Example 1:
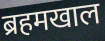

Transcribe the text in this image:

ब्रहमखाल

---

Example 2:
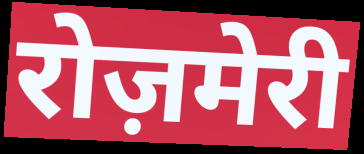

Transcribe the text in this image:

रोज़मेरी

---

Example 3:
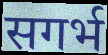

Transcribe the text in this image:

सगर्भ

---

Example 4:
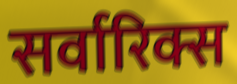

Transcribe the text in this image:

सर्वारिक्स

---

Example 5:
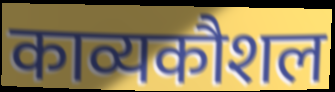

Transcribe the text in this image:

काव्यकौशल